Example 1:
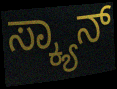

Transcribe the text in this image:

ಸ್ಕ್ಯಾನ್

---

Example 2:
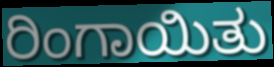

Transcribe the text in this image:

ರಿಂಗಾಯಿತು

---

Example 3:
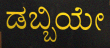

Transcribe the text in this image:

ಡಬ್ಬಿಯೇ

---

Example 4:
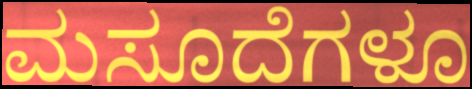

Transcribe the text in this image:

ಮಸೂದೆಗಳೂ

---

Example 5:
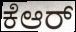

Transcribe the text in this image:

ಕೆಆರ್